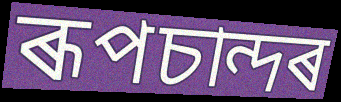
ৰূপচান্দৰ